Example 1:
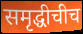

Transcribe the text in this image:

समृद्धीचीच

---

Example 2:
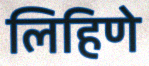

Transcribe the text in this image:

लिहिणे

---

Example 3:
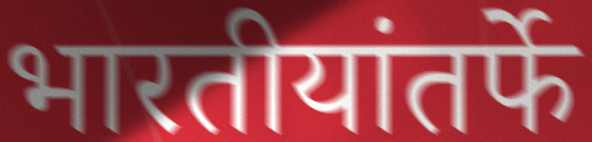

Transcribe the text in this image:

भारतीयांतर्फे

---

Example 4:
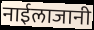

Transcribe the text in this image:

नाईलाजानी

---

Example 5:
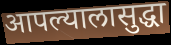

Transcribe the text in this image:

आपल्यालासुद्धा